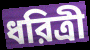
ধরিত্রী